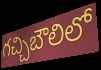
గచ్చిబౌలిలో